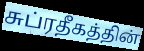
சுப்ரதீகத்தின்